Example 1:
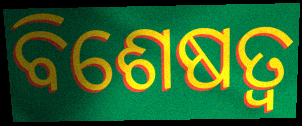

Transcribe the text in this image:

ବିଶେଷତ୍ଵ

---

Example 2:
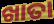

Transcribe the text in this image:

ଖାତା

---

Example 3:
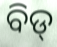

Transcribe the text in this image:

ବିଡ୍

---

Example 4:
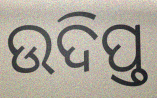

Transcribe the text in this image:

ଉଦିପ୍ତ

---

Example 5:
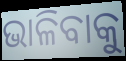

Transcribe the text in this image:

ଭାଳିବାକୁ